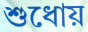
শুধোয়